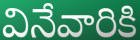
వినేవారికి